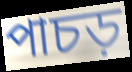
পাচড়